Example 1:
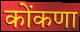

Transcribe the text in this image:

कोंकणा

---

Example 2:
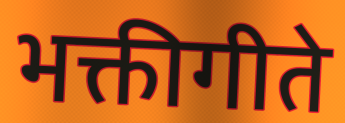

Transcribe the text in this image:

भक्तीगीते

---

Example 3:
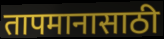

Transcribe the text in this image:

तापमानासाठी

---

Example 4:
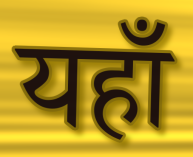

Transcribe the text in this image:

यहाँ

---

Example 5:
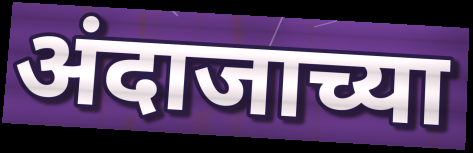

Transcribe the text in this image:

अंदाजाच्या